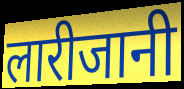
लारीजानी